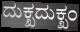
ದುಕ್ಖದುಕ್ಖಂ